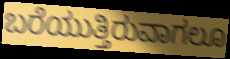
ಬರೆಯುತ್ತಿರುವಾಗಲೂ